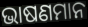
ଭାଷଣମାନ